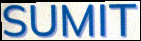
SUMIT